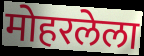
मोहरलेला